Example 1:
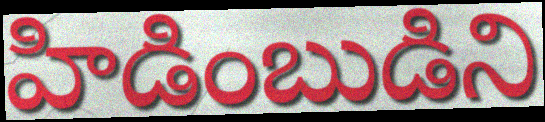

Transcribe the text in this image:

హిడింబుడిని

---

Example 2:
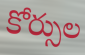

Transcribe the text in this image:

కోర్సుల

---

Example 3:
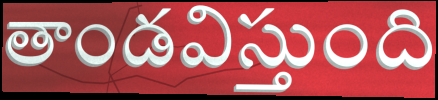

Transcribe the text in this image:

తాండవిస్తుంది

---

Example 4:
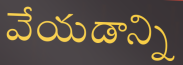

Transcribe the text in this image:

వేయడాన్ని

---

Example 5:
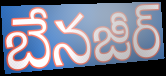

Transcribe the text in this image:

బేనజీర్